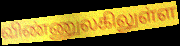
விண்ணுலகிலுள்ள